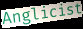
Anglicist